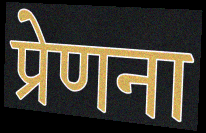
प्रेणना